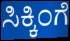
ಸಿಕ್ಕಿಂಗೆ